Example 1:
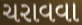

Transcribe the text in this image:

ચરાવવા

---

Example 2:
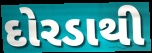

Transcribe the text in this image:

દોરડાથી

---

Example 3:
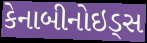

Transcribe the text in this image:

કેનાબીનોઇડ્સ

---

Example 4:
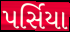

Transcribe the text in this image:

પર્સિયા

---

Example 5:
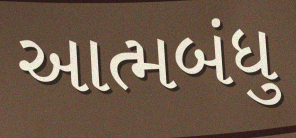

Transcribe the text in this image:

આત્મબંધુ